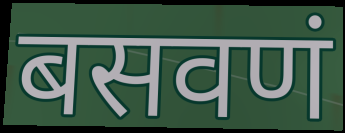
बसवणं